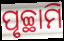
ପୃଚ୍ଛାମି